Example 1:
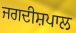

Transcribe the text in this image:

ਜਗਦੀਸ਼ਪਾਲ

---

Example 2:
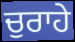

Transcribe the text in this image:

ਚੁਰਾਹੇ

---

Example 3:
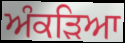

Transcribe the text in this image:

ਅੰਕੜਿਆ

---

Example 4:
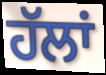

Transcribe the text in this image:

ਹੱਲਾਂ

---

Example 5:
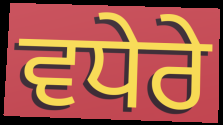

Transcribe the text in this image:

ਵਧੇਰੇ